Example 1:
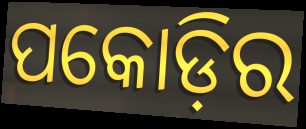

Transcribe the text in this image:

ପକୋଡ଼ିର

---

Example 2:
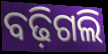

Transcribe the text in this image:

ବଢ଼ିଗଲି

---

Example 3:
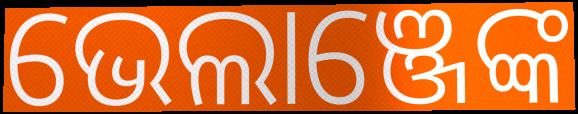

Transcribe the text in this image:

ଭେଲାଞ୍ଜେଙ୍କ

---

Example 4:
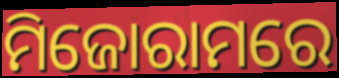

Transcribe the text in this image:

ମିଜୋରାମରେ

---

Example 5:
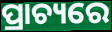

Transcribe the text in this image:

ପ୍ରାଚ୍ୟରେ